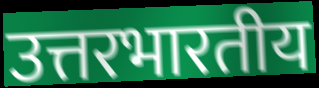
उत्तरभारतीय